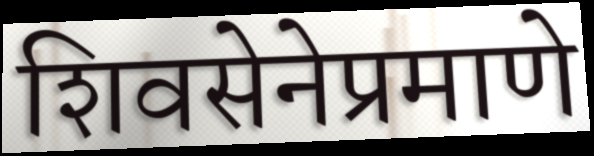
शिवसेनेप्रमाणे